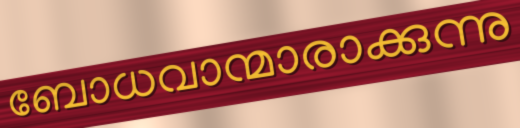
ബോധവാന്മാരാക്കുന്നു